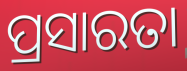
ପ୍ରସାରତା